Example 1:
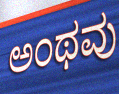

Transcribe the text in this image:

ಅಂಥವು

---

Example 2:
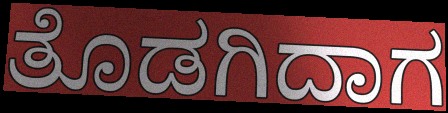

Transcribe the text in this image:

ತೊಡಗಿದಾಗ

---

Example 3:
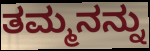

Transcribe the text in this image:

ತಮ್ಮನನ್ನು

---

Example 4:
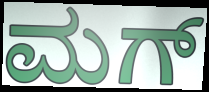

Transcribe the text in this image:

ಮಗ್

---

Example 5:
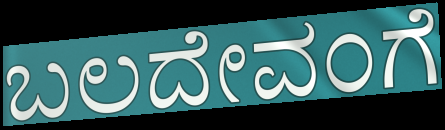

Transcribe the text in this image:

ಬಲದೇವಂಗೆ